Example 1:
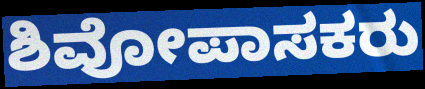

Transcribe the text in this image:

ಶಿವೋಪಾಸಕರು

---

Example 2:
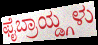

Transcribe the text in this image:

ಫೈಬ್ರಾಯ್ಡ್ಗಳು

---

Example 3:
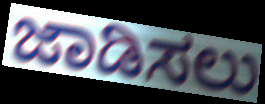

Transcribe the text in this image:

ಜಾಡಿಸಲು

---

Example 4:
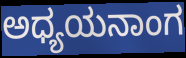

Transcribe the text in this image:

ಅಧ್ಯಯನಾಂಗ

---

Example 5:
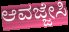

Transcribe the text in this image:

ಆವಜ್ಜೇಸಿ